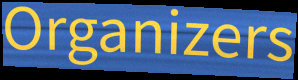
Organizers